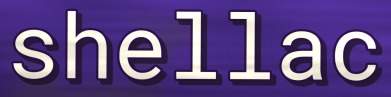
shellac